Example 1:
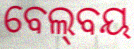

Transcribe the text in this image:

ବେଲ୍‍ବୟ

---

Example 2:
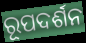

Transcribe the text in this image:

ରୂପଦର୍ଶନ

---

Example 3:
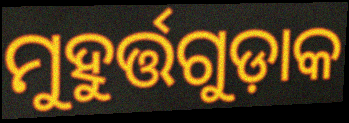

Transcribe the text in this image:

ମୁହୁର୍ତ୍ତଗୁଡ଼ାକ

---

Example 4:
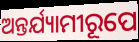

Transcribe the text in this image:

ଅନ୍ତର୍ଯ୍ୟାମୀରୂପେ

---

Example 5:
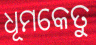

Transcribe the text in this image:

ଧୂମକେତୁ